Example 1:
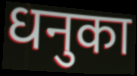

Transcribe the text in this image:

धनुका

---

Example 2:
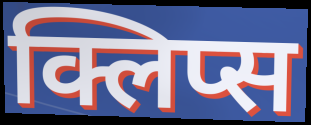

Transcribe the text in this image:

क्लिप्स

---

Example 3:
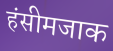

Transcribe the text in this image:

हंसीमजाक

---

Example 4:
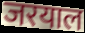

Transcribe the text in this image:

जरयाल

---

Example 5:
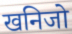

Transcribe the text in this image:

खनिजो